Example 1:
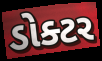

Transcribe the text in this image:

ડોક્ટર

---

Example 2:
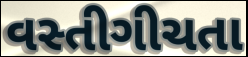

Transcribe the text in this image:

વસ્તીગીચતા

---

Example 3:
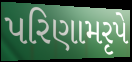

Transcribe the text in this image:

પરિણામરૃપે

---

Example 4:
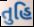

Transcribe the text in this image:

તુહિ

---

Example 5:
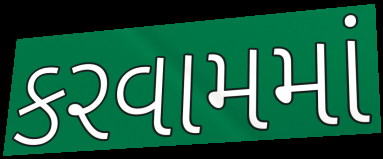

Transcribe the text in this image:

કરવામમાં